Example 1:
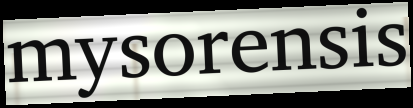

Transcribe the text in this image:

mysorensis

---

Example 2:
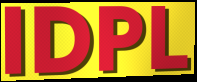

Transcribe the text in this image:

IDPL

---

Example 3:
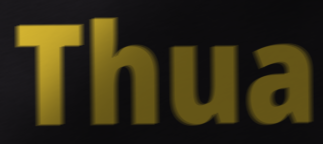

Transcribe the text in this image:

Thua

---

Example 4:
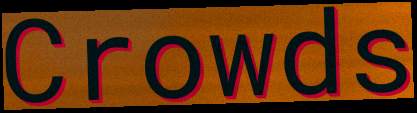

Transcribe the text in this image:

Crowds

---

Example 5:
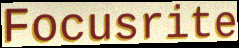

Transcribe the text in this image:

Focusrite